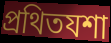
প্রথিতযশা